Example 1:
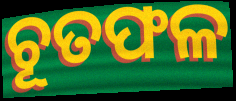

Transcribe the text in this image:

ଚୂତଫଳ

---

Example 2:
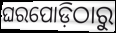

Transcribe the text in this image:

ଘରପୋଡ଼ିଠାରୁ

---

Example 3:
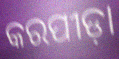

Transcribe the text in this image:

କରପୀଡ଼ା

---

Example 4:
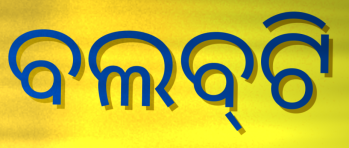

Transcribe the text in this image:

ବଲବ୍‌ଟି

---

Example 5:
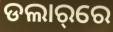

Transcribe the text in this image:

ଡଲାର୍‌ରେ